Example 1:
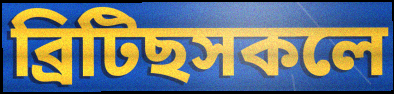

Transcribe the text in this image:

ব্ৰিটিছসকলে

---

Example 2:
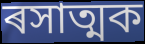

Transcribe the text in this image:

ৰসাত্মক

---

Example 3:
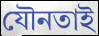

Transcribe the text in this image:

যৌনতাই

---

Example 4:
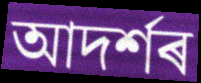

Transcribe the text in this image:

আদৰ্শৰ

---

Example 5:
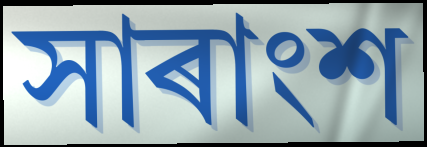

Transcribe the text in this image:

সাৰাংশ